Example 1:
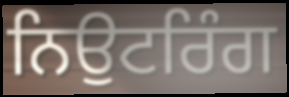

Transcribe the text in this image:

ਨਿਉਟਰਿੰਗ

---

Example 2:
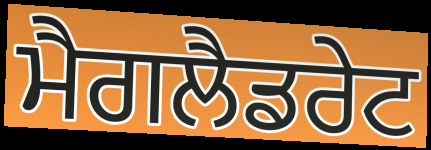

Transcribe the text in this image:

ਮੈਗਲੈਡਰੇਟ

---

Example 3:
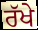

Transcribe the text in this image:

ਰੱਖੇ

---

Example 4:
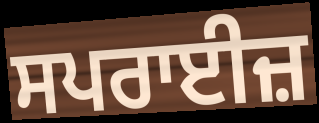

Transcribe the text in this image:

ਸਪਰਾਈਜ਼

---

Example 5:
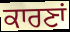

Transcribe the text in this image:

ਕਾਰਣਾਂ